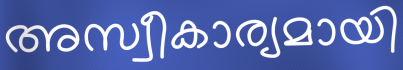
അസ്വീകാര്യമായി